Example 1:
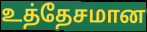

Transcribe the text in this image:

உத்தேசமான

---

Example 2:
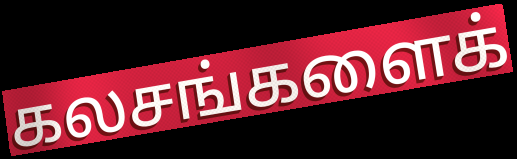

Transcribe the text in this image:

கலசங்களைக்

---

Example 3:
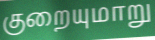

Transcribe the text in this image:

குறையுமாறு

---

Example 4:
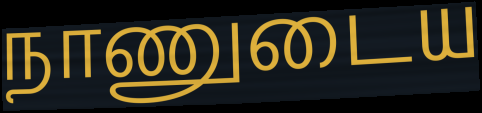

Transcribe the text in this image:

நாணுடைய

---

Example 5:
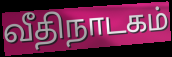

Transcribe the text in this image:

வீதிநாடகம்